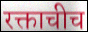
रक्ताचीच